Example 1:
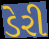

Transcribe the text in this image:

ડેરી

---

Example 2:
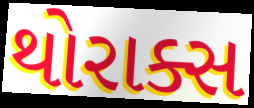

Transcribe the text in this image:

થોરાક્સ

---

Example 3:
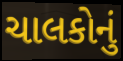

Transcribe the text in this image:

ચાલકોનું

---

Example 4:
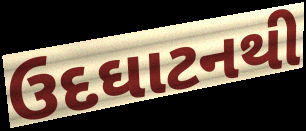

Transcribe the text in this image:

ઉદઘાટનથી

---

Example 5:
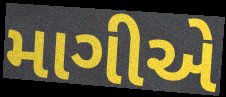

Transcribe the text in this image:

માગીએ